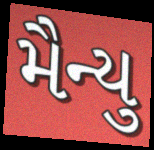
મૈન્યુ